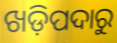
ଖଡ଼ିପଦାରୁ